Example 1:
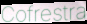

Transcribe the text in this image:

Cofrestra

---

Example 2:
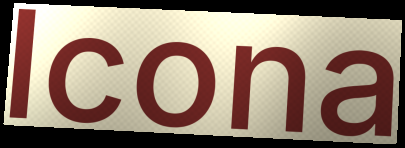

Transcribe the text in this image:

Icona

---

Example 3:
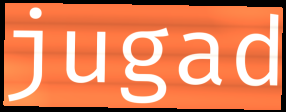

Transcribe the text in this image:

jugad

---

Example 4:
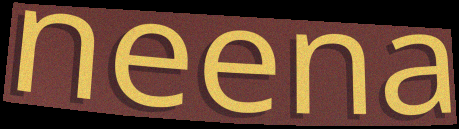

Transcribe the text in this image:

neena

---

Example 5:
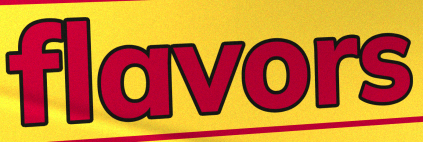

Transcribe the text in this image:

flavors